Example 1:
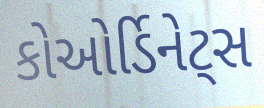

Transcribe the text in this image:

કોઓર્ડિનેટ્સ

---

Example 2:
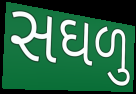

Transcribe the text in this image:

સઘળુ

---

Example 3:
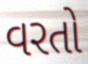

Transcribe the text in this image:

વરતો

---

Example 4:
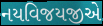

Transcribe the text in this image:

નયવિજયજીએ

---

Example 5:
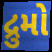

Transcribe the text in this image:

દ્રુમો